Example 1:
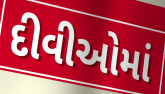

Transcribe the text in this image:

દીવીઓમાં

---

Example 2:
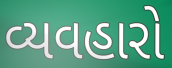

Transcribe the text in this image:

વ્યવહારો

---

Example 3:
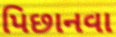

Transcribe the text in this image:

પિછાનવા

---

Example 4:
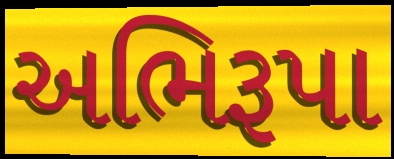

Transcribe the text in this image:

અભિરૂપા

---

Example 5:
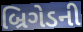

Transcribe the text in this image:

બ્રિગેડની